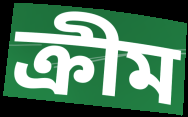
ক্ৰীম